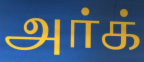
அர்க்